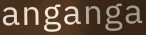
anganga